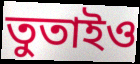
তুতাইও